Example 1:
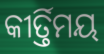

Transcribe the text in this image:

କୀର୍ତ୍ତିମୟ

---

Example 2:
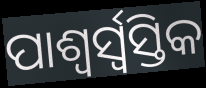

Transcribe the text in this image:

ପାଶ୍ୱର୍ସ୍ୱସ୍ତିକ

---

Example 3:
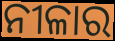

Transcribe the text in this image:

ନୀଳାର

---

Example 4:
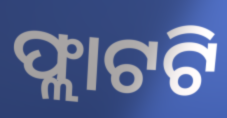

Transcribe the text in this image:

ଫ୍ଲାଟଟି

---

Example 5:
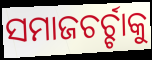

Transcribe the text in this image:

ସମାଜଚର୍ଚ୍ଚାକୁ